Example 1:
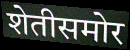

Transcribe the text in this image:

शेतीसमोर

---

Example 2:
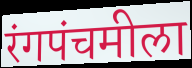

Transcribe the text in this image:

रंगपंचमीला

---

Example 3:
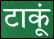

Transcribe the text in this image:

टाकूं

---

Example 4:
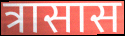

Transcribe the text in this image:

त्रासास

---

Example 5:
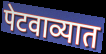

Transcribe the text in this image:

पेटवाव्यात